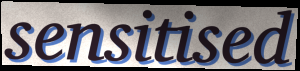
sensitised